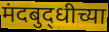
मंदबुद्धीच्या